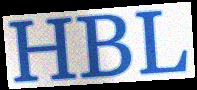
HBL